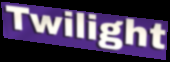
Twilight